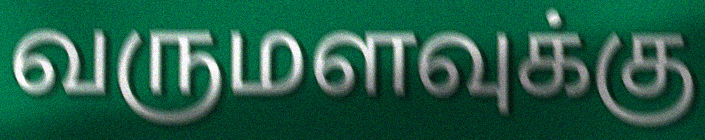
வருமளவுக்கு